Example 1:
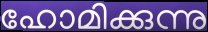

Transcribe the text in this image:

ഹോമിക്കുന്നു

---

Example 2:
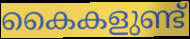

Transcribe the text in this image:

കൈകളുണ്ട്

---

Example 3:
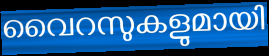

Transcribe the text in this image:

വൈറസുകളുമായി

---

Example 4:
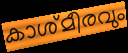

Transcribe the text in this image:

കാശ്മീരവും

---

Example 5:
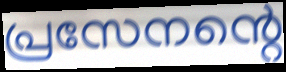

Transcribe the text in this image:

പ്രസേനന്റെ